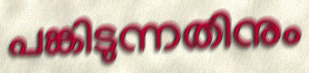
പങ്കിടുന്നതിനും